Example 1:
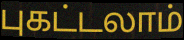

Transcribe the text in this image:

புகட்டலாம்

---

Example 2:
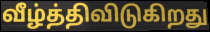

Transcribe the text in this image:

வீழ்த்திவிடுகிறது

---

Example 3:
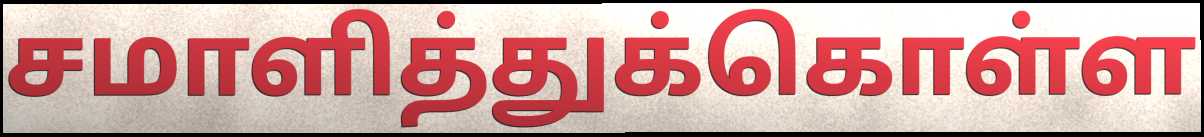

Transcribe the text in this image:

சமாளித்துக்கொள்ள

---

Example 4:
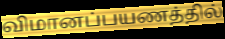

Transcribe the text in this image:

விமானப்பயணத்தில்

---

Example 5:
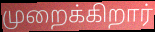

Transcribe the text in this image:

முறைக்கிறார்